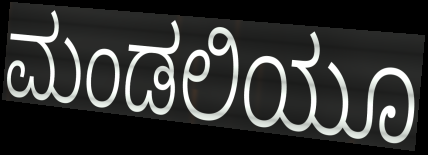
ಮಂಡಲಿಯೂ